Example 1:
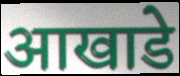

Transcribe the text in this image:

आखाडे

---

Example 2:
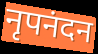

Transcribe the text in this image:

नृपनंदन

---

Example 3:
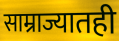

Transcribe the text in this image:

साम्राज्यातही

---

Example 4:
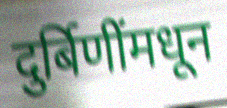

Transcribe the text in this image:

दुर्बिणींमधून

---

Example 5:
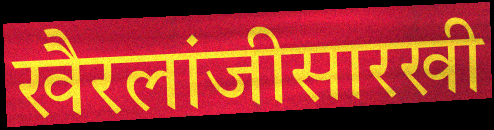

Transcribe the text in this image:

खैरलांजीसारखी